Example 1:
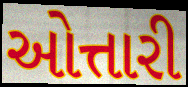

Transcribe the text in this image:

ઓત્તારી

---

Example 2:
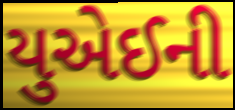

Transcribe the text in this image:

યુએઈની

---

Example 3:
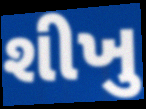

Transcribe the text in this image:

શીખુ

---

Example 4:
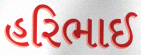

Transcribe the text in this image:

હરિભાઈ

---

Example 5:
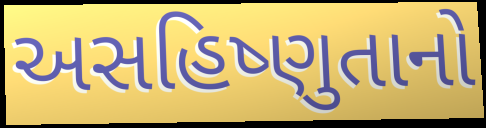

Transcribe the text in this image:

અસહિષ્ણુતાનો